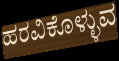
ಹರವಿಕೊಳ್ಳುವ